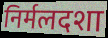
निर्मलदशा